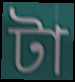
টা